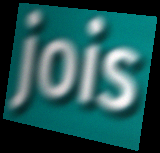
jois